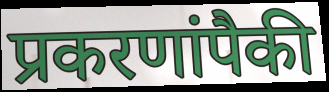
प्रकरणांपैकी